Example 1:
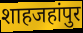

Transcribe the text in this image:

शाहजहांपुर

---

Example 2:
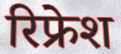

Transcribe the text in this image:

रिफ्रेश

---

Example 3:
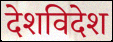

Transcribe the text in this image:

देशविदेश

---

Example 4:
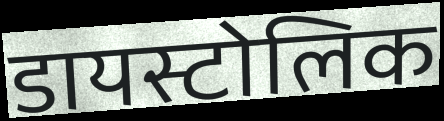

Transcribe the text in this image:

डायस्टोलिक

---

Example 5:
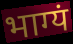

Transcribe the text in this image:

भाग्यं